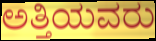
ಅತ್ತಿಯವರು